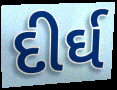
દીર્ઘ